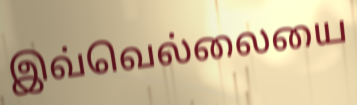
இவ்வெல்லையை